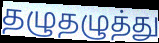
தழுதழுத்து